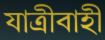
যাত্ৰীবাহী